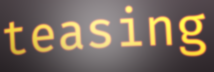
teasing